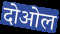
दोओल